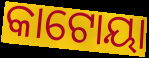
କାଟୋୟା